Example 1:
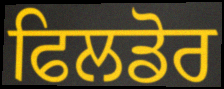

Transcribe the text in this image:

ਫਿਲਡੋਰ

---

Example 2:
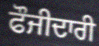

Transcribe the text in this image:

ਫੌਜੀਦਾਰੀ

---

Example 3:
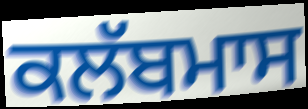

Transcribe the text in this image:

ਕਲੱਬਮਾਸ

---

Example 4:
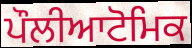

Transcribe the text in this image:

ਪੌਲੀਆਟੋਮਿਕ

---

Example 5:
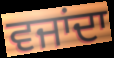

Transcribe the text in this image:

ਵਜਾਂਦਾ